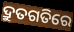
ଦ୍ରୁତଗତିରେ